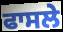
ਫਾਸਲੇ